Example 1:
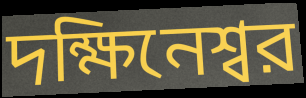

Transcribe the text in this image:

দক্ষিনেশ্বর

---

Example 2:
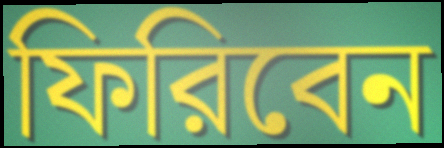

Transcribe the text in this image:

ফিরিবেন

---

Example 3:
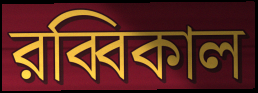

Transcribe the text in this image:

রব্বিকাল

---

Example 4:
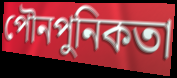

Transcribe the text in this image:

পৌনপুনিকতা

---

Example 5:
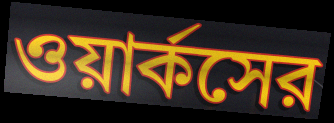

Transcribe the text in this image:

ওয়ার্কসের